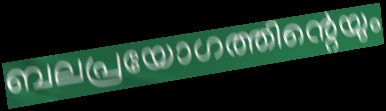
ബലപ്രയോഗത്തിന്റെയും